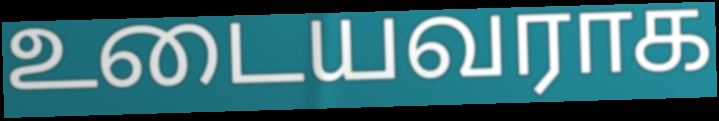
உடையவராக